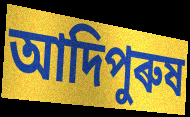
আদিপুৰুষ